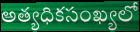
అత్యధికసంఖ్యలో